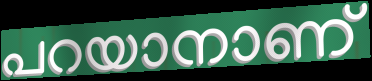
പറയാനാണ്